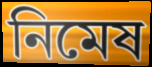
নিমেষ